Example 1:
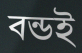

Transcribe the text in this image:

বন্ডই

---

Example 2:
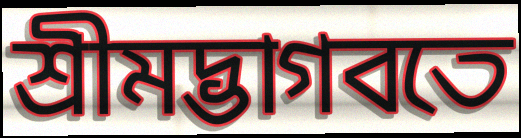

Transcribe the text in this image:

শ্রীমদ্ভাগবতে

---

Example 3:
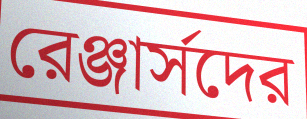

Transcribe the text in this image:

রেঞ্জার্সদের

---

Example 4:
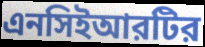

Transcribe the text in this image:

এনসিইআরটির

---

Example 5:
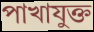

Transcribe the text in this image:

পাখাযুক্ত